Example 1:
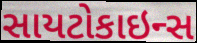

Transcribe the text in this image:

સાયટોકાઇન્સ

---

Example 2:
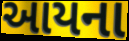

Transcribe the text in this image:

આયના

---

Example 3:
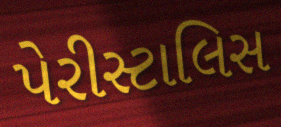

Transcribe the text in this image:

પેરીસ્ટાલિસ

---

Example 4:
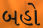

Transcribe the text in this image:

બહો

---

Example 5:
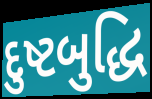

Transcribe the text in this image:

દુષ્ટબુદ્ધિ